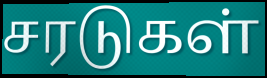
சரடுகள்